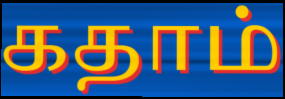
கதாம்